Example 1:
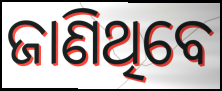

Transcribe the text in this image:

ଜାଣିଥିବେ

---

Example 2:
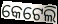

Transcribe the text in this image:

କେଟେଲି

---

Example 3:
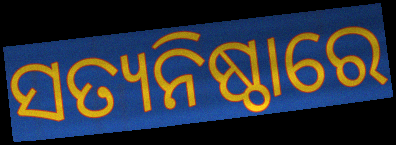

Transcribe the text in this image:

ସତ୍ୟନିଷ୍ଠାରେ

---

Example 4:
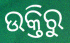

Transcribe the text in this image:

ଉକ୍ତିରୁ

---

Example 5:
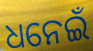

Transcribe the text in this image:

ଧନେଇଁ